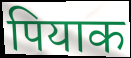
पियाक